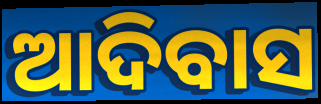
ଆଦିବାସ